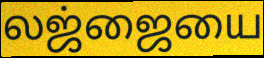
லஜ்ஜையை